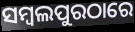
ସମ୍ବଲପୁରଠାରେ